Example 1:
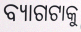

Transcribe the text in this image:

ବ୍ୟାଗଟାକୁ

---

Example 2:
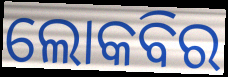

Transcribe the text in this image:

ଲୋକବିର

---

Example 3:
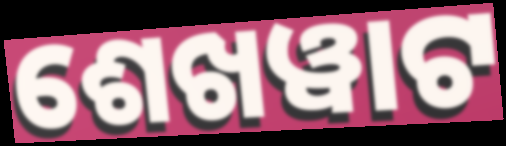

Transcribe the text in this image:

ଶେଖୱାଟ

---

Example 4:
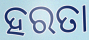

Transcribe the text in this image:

ହରତା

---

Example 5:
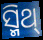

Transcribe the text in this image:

ସ୍ମିଥ୍